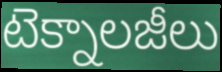
టెక్నాలజీలు